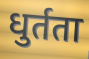
धुर्तता